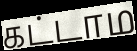
கட்டாம